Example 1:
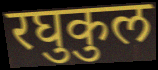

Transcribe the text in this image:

रघुकुल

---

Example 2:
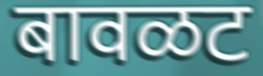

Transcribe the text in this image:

बावळट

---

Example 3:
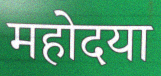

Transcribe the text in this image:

महोदया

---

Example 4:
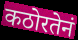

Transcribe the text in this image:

कठोरतेनं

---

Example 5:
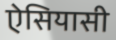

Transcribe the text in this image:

ऐसियासी